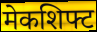
मेकशिफ्ट